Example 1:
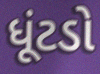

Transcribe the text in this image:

ધૂંટડો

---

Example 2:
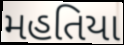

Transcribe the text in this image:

મહતિયા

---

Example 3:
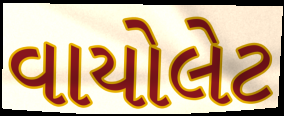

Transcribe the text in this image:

વાયોલેટ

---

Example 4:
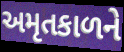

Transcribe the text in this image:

અમૃતકાળને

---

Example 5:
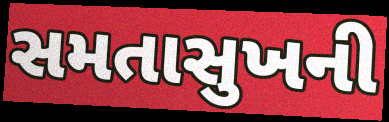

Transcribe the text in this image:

સમતાસુખની